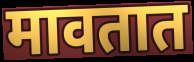
मावतात